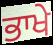
ਭਾਖੇ